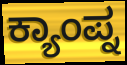
ಕ್ಯಾಂಪ್ನ